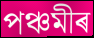
পঞ্চমীৰ